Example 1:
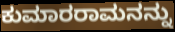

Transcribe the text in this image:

ಕುಮಾರರಾಮನನ್ನು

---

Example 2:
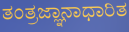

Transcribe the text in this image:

ತಂತ್ರಜ್ಞಾನಾಧಾರಿತ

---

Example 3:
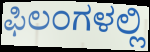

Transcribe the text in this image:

ಫಿಲಂಗಳಲ್ಲಿ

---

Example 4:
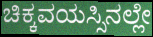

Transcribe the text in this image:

ಚಿಕ್ಕವಯಸ್ಸಿನಲ್ಲೇ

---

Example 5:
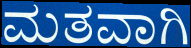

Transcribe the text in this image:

ಮತವಾಗಿ